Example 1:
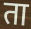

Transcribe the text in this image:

ता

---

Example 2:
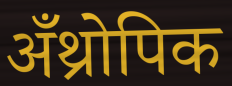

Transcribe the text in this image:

अँथ्रोपिक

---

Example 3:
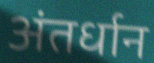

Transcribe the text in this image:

अंतर्धान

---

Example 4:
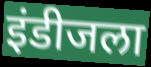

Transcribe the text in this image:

इंडीजला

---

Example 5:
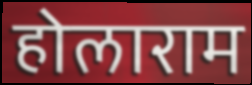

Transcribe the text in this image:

होलाराम